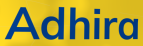
Adhira